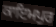
ਕਾਇਮਪੁਰ